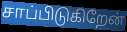
சாப்பிடுகிறேன்